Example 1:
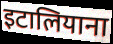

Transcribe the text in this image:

इटालियाना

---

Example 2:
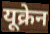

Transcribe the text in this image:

यूक्रेन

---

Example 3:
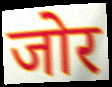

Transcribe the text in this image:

जोर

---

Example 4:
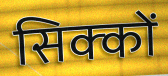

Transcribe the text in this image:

सिक्‍कों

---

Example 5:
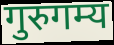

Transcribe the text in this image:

गुरुगम्य